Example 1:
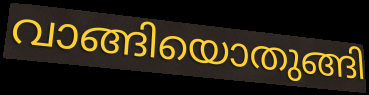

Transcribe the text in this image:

വാങ്ങിയൊതുങ്ങി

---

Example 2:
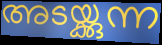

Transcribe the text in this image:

അടയ്ക്കുന്ന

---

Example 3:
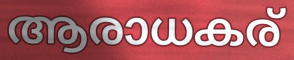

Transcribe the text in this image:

ആരാധകര്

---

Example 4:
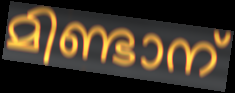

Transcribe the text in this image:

മിണ്ടാന്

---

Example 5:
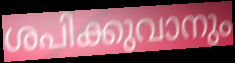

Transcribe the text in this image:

ശപിക്കുവാനും